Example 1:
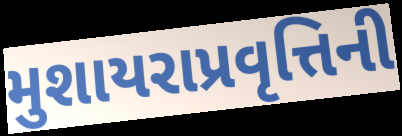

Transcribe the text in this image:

મુશાયરાપ્રવૃત્તિની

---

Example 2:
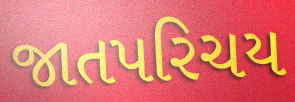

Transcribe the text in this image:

જાતપરિચય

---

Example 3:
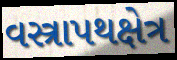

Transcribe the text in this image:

વસ્ત્રાપથક્ષેત્ર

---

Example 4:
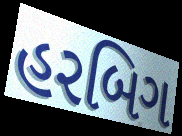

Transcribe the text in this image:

હરબિગ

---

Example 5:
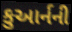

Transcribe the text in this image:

કુઆર્નની